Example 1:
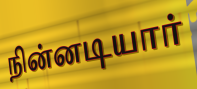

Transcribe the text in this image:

நின்னடியார்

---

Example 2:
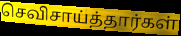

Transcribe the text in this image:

செவிசாய்த்தார்கள்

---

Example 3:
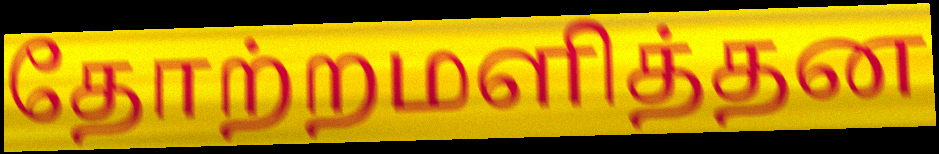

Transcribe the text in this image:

தோற்றமளித்தன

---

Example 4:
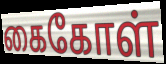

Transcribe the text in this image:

கைகோள்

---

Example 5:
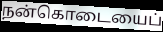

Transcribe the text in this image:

நன்கொடையைப்